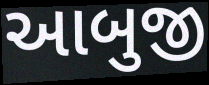
આબુજી